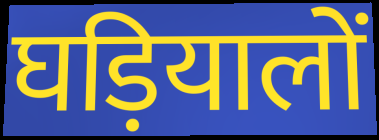
घड़ियालों